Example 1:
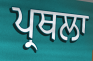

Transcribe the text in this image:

ਪ੍ਰਥਲਾ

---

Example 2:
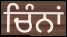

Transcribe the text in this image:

ਚਿੰਨਾਂ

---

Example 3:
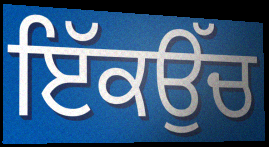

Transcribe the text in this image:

ਇੱਕਉੱਚ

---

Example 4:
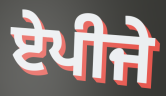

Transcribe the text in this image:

ਏਪੀਜੇ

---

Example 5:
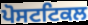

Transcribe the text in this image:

ਪੋਸਟਟਿਕਲ